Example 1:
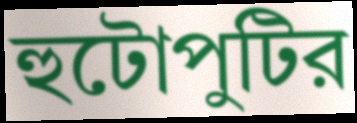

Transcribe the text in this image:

হুটোপুটির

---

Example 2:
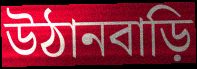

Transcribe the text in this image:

উঠানবাড়ি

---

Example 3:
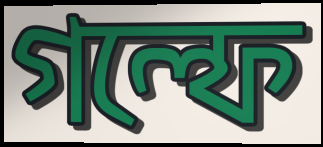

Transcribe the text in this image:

গল্ফে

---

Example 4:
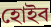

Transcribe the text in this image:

হোইব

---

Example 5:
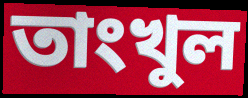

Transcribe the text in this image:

তাংখুল